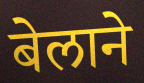
बेलाने